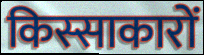
किस्साकारों